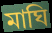
মাঘি